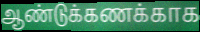
ஆண்டுக்கணக்காக